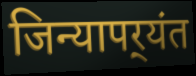
जिन्यापर्यंत